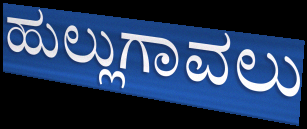
ಹುಲ್ಲುಗಾವಲು